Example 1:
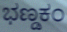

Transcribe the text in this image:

ಭಣ್ಡಕಂ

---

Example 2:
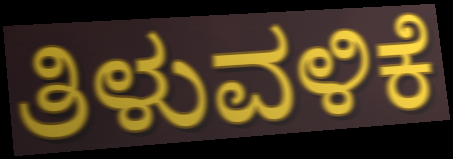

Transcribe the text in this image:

ತಿಳುವಳಿಕೆ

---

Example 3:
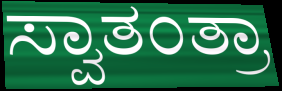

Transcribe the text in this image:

ಸ್ವಾತಂತ್ರಾ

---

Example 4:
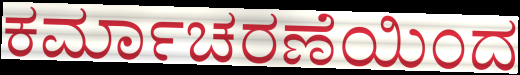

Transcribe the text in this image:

ಕರ್ಮಾಚರಣೆಯಿಂದ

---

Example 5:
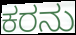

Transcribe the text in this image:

ಕರನು